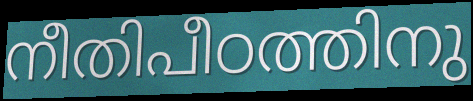
നീതിപീഠത്തിനു